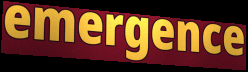
emergence